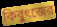
কিবুৎজের